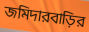
জমিদারবাড়ির